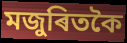
মজুৰিতকৈ